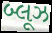
બ્લૂઝ